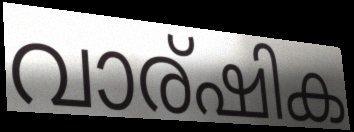
വാര്ഷിക